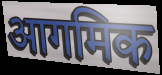
आगमिक